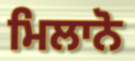
ਮਿਲਾਨੋ